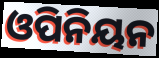
ଓପିନିୟନ